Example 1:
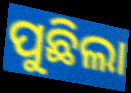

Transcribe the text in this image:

ପୁଛିଲା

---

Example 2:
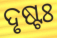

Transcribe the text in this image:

ଦୃଷ୍ଟଃ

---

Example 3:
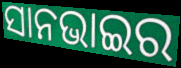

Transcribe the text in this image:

ସାନଭାଇର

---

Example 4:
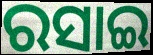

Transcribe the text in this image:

ରସାଇ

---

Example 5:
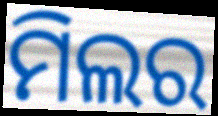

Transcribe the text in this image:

ମିଲର